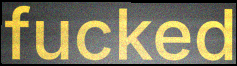
fucked